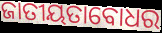
ଜାତୀୟତାବୋଧର